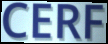
CERF